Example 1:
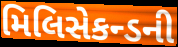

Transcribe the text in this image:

મિલિસેકન્ડની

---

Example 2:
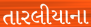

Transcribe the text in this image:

તારલીયાના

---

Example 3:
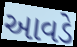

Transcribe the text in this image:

આવડે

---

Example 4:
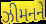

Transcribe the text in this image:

ઝીમનને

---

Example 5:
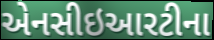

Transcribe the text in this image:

એનસીઇઆરટીના